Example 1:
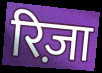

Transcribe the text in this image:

रिज़ा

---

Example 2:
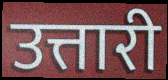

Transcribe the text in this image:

उत्तारी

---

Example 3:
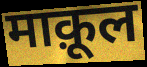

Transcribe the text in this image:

माक़ूल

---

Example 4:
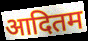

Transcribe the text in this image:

आदितम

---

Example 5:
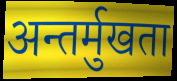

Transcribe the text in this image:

अन्तर्मुखता